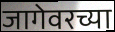
जागेवरच्या